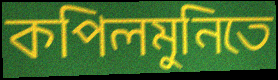
কপিলমুনিতে